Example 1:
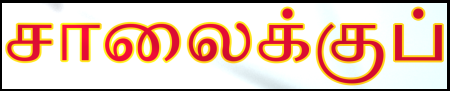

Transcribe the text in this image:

சாலைக்குப்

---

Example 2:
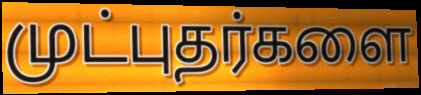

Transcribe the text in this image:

முட்புதர்களை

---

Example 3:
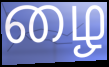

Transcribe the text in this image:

ழை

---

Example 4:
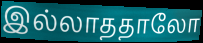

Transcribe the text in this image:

இல்லாததாலோ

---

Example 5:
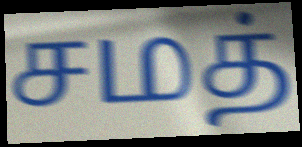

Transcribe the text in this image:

சமத்